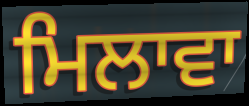
ਮਿਲਾਵਾ